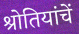
श्रोतियांचें